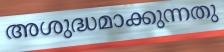
അശുദ്ധമാക്കുന്നതു